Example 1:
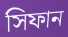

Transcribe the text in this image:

সিফান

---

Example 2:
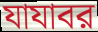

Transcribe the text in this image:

যাযাবর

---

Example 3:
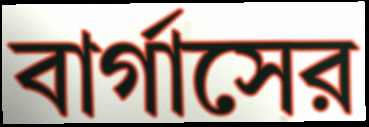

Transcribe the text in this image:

বার্গাসের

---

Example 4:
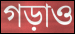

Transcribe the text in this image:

গড়াও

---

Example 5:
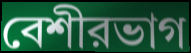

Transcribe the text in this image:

বেশীরভাগ